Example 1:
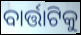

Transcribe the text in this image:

ବାର୍ତ୍ତାଟିକୁ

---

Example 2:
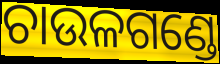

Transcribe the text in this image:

ଚାଉଳଗଣ୍ଡେ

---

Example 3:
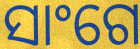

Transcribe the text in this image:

ସାଂଗେ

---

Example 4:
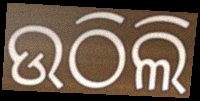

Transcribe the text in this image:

ଉଠିଲି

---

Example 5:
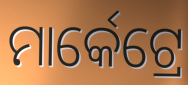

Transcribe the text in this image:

ମାର୍କେଟ୍ରେ